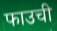
फाउची